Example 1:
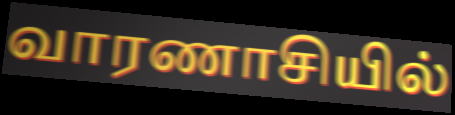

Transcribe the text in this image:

வாரணாசியில்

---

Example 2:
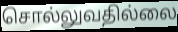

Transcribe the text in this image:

சொல்லுவதில்லை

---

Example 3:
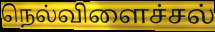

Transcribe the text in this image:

நெல்விளைச்சல்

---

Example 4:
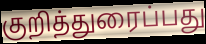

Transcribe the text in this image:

குறித்துரைப்பது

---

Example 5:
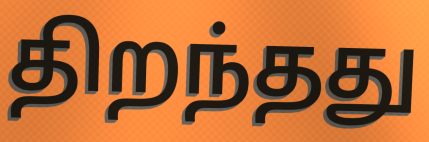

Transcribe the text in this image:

திறந்தது